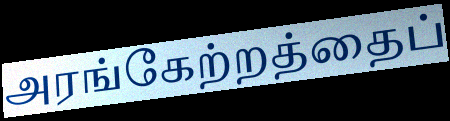
அரங்கேற்றத்தைப்